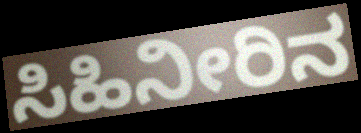
ಸಿಹಿನೀರಿನ